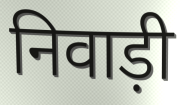
निवाड़ी